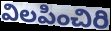
విలపించిరి